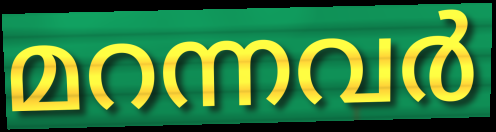
മറന്നവർ